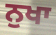
ਨੁਖਾ